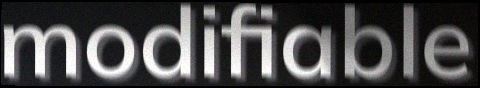
modifiable